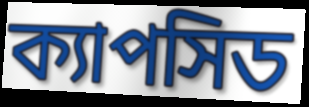
ক্যাপসিড